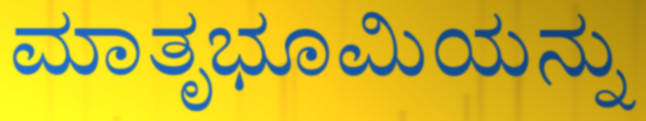
ಮಾತೃಭೂಮಿಯನ್ನು